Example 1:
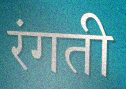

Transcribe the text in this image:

रंगती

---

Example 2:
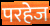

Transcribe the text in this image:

परहेज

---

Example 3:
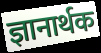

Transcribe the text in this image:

ज्ञानार्थक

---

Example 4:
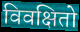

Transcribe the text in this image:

विवक्षितो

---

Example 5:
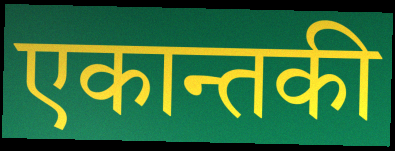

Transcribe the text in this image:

एकान्तकी